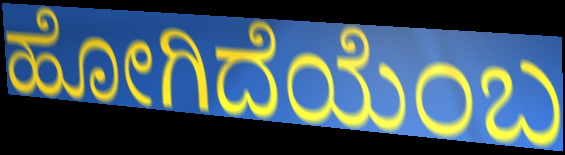
ಹೋಗಿದೆಯೆಂಬ